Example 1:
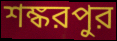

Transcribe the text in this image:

শঙ্করপুর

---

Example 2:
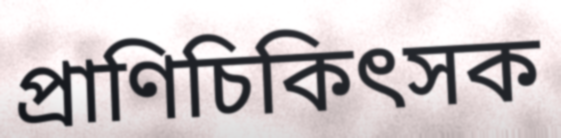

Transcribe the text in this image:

প্রাণিচিকিৎসক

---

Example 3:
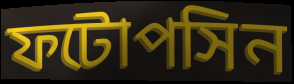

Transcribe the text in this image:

ফটোপসিন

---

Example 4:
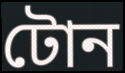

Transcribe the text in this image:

টোন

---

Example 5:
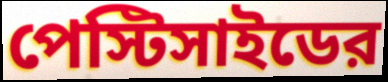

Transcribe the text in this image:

পেস্টিসাইডের